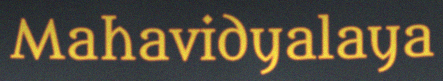
Mahavidyalaya